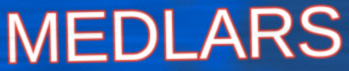
MEDLARS